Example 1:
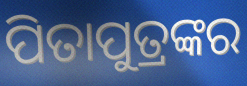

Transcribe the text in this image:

ପିତାପୁତ୍ରଙ୍କର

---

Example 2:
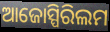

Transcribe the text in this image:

ଆଜୋସ୍ପିରିଲମ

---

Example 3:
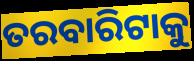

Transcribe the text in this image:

ତରବାରିଟାକୁ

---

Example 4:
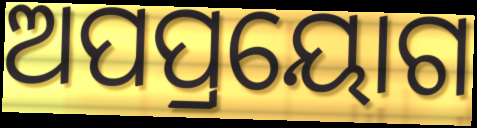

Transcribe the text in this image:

ଅପପ୍ରୟୋଗ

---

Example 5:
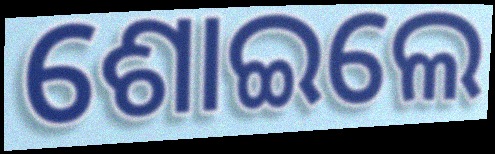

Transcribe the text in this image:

ଶୋଇଲେ